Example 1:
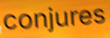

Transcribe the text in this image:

conjures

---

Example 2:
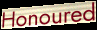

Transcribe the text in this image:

Honoured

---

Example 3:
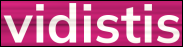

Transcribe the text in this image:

vidistis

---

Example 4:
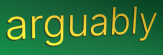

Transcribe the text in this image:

arguably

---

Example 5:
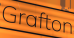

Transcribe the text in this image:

Grafton